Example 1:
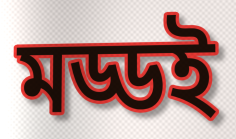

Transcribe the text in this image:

মড্ডই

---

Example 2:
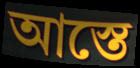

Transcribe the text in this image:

আস্তে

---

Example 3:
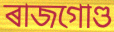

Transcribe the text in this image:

ৰাজগোণ্ড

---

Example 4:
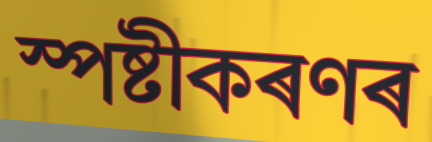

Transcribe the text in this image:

স্পষ্টীকৰণৰ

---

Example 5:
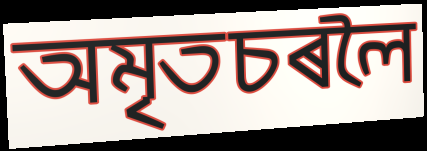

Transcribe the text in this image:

অমৃতচৰলৈ